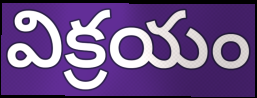
విక్రయం